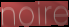
noire